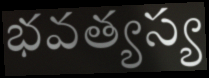
భవత్యస్య